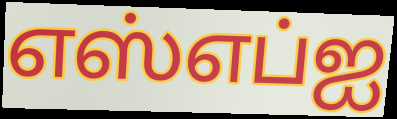
எஸ்எப்ஐ